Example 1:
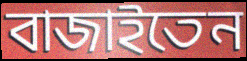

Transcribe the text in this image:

বাজাইতেন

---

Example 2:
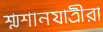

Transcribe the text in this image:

শ্মশানযাত্রীরা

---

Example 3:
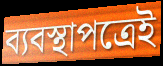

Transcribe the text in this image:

ব্যবস্থাপত্রেই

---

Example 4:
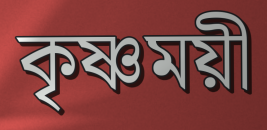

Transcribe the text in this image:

কৃষ্ণময়ী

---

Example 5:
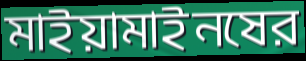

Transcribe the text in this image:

মাইয়ামাইনষের